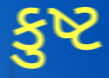
કુષ્ટ